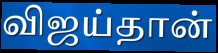
விஜய்தான்